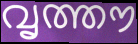
വൃത്തൗ